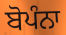
ਬੋਪੰਨਾ